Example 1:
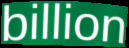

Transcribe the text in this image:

billion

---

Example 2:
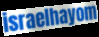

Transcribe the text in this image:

israelhayom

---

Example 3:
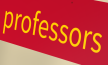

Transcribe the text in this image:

professors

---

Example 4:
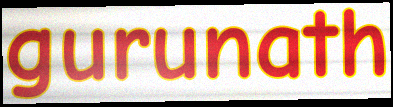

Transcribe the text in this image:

gurunath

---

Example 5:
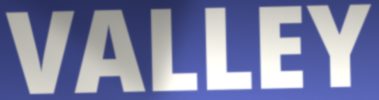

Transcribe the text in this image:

VALLEY